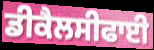
ਡੀਕੈਲਸੀਫਾਈ